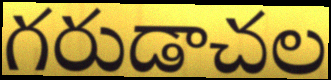
గరుడాచల